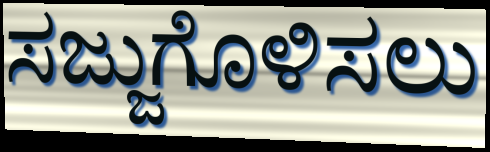
ಸಜ್ಜುಗೊಳಿಸಲು